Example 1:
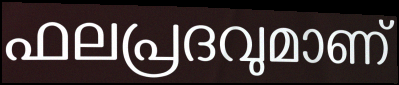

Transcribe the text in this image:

ഫലപ്രദവുമാണ്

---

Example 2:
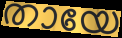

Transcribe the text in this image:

തായേ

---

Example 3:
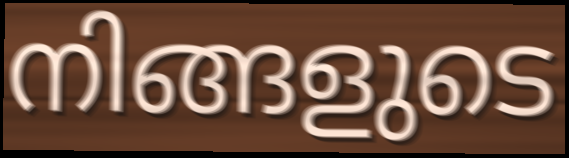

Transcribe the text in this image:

നിങ്ങളുടെ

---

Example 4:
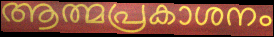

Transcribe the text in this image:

ആത്മപ്രകാശനം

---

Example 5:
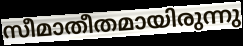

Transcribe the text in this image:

സീമാതീതമായിരുന്നു